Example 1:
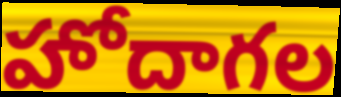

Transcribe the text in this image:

హోదాగల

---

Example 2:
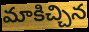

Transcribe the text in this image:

మాకిచ్చిన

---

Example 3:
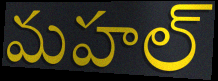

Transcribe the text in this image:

మహల్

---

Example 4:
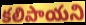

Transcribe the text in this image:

కలిపాయని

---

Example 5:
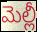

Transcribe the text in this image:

మెల్లీ